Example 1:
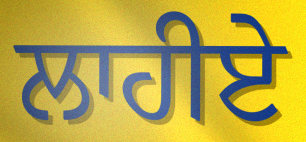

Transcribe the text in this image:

ਲਾਹੀਏ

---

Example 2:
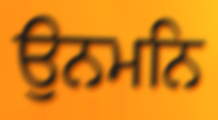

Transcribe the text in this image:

ਉਨਮਨਿ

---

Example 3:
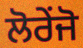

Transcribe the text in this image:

ਲੋਰੇਂਜੋ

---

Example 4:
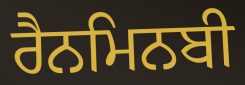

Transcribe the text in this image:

ਰੈਨਮਿਨਬੀ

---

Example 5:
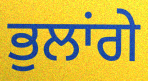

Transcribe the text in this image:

ਭੁਲਾਂਗੇ